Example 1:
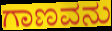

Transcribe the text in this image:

ಗಾಣವನು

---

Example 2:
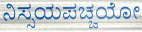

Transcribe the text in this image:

ನಿಸ್ಸಯಪಚ್ಚಯೋ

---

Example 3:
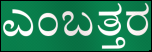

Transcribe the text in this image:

ಎಂಬತ್ತರ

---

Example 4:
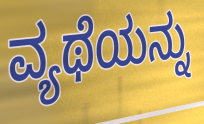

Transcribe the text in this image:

ವ್ಯಥೆಯನ್ನು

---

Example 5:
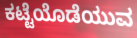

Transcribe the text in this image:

ಕಟ್ಟೆಯೊಡೆಯುವ